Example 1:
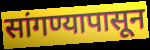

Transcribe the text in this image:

सांगण्यापासून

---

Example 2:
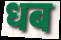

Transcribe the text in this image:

धब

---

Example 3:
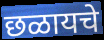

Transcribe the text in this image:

छळायचे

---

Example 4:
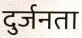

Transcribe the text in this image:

दुर्जनता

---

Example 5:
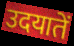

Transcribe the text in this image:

उदयातें